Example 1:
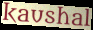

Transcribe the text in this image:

kaushal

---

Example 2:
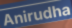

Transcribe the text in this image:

Anirudha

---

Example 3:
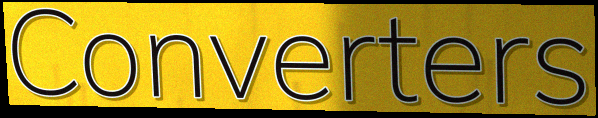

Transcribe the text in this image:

Converters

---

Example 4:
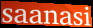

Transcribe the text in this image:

saanasi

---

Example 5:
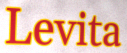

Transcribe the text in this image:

Levita